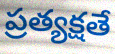
ప్రత్యక్షతే